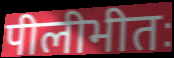
पीलीभीतः